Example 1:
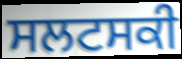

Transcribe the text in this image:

ਸਲਟਸਕੀ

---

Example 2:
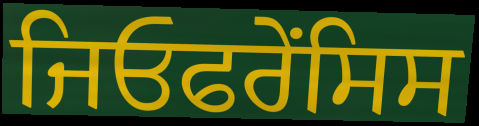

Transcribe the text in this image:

ਜਿਓਫਰੇਂਸਿਸ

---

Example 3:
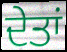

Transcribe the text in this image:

ਦੇਤਾਂ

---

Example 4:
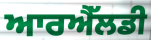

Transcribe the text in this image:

ਆਰਐੱਲਡੀ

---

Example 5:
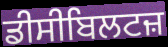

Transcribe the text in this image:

ਡੀਸੀਬਿਲਟਜ਼